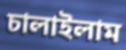
চালাইলাম